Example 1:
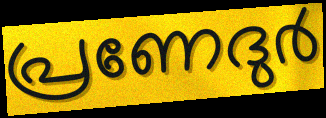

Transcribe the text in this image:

പ്രണേദുർ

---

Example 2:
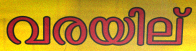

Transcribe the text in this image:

വരയില്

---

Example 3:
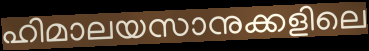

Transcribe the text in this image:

ഹിമാലയസാനുക്കളിലെ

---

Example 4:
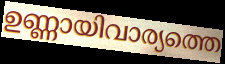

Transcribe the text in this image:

ഉണ്ണായിവാര്യത്തെ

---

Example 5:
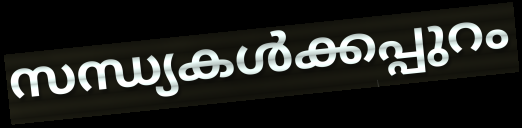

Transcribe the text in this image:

സന്ധ്യകൾക്കപ്പുറം